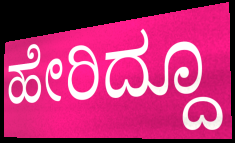
ಹೇರಿದ್ದೂ